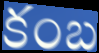
కంబ